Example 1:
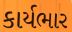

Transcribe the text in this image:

કાર્યભાર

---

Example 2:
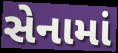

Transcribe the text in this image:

સેનામાં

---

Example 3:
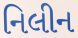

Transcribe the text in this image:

નિલીન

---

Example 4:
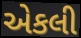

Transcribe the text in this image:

એકલી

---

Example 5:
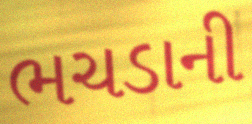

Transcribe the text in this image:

ભચડાની